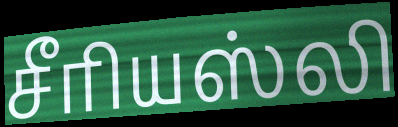
சீரியஸ்லி